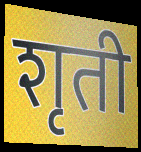
शृती